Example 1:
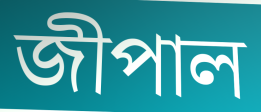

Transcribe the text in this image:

জীপাল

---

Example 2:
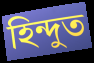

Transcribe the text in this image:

হিন্দুত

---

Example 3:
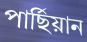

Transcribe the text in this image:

পাৰ্ছিয়ান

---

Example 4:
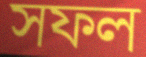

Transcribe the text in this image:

সফল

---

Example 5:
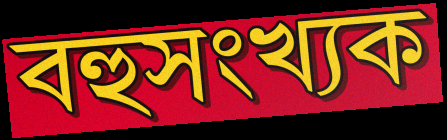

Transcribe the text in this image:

বহুসংখ্যক